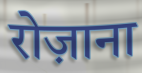
रोज़ाना